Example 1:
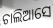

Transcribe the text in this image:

ଚାଲିଆସେ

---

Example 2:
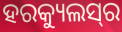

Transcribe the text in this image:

ହରକ୍ୟୁଲସ୍‍ର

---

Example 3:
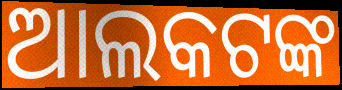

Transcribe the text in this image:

ଆଲକଟଙ୍କ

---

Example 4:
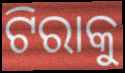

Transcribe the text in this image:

ଟିରାକୁ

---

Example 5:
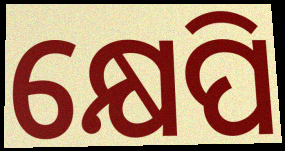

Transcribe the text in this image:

କ୍ଷେପି